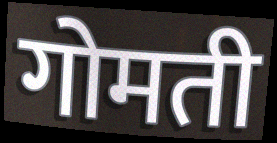
गोमती